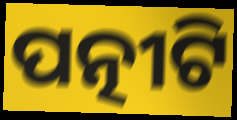
ପତ୍ନୀଟି